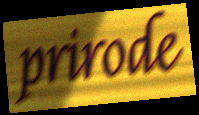
prirode